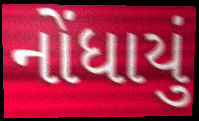
નોંધાયું